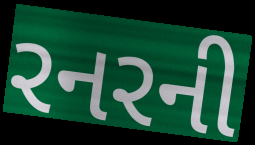
રનરની